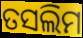
ତସଲିମ